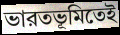
ভারতভূমিতেই